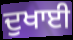
ਦੁਖਾਈ